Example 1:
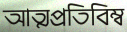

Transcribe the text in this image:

আত্মপ্রতিবিম্ব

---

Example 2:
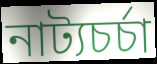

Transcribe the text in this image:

নাট্যচর্চা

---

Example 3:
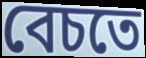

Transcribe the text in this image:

বেচতে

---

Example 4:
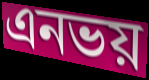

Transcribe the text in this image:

এনভয়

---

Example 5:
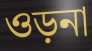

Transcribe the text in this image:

ওড়না